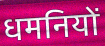
धमनियों